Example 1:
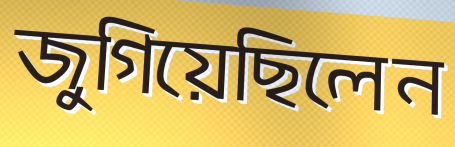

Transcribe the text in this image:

জুগিয়েছিলেন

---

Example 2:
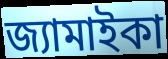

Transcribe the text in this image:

জ্যামাইকা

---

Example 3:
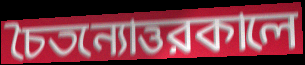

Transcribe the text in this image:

চৈতন্যোত্তরকালে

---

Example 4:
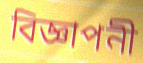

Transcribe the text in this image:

বিজ্ঞাপনী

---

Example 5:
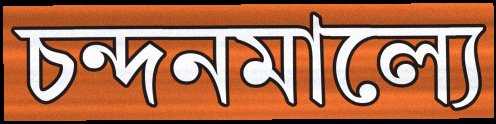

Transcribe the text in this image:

চন্দনমাল্যে